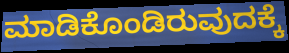
ಮಾಡಿಕೊಂಡಿರುವುದಕ್ಕೆ